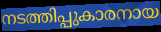
നടത്തിപ്പുകാരനായ